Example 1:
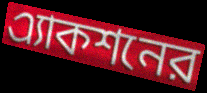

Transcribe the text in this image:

এ্যাকশনের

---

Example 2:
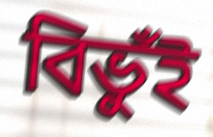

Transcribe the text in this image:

বিভুঁই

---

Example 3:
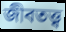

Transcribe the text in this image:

জীবতত্ত্ব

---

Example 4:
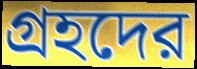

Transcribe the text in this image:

গ্রহদের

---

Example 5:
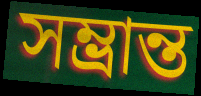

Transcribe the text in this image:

সম্ভ্রান্ত